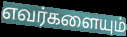
எவர்களையும்